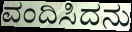
ವಂದಿಸಿದನು